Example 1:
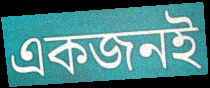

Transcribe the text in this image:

একজনই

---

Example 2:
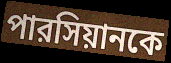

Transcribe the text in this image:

পারসিয়ানকে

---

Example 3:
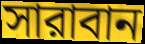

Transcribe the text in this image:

সারাবান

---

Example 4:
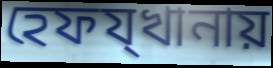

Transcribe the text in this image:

হেফয্খানায়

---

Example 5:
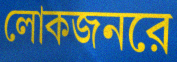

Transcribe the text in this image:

লোকজনরে